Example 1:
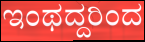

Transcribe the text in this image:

ಇಂಥದ್ದರಿಂದ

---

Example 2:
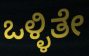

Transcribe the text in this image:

ಒಳ್ಳಿತೇ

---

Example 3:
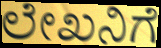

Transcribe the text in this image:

ಲೇಖನಿಗೆ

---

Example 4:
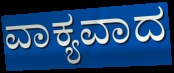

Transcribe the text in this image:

ವಾಕ್ಯವಾದ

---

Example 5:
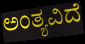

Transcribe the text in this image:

ಅಂತ್ಯವಿದೆ